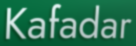
Kafadar